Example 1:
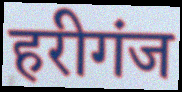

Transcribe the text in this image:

हरीगंज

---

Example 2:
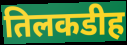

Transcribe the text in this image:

तिलकडीह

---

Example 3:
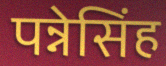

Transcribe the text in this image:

पन्नेसिंह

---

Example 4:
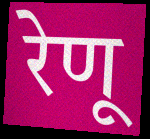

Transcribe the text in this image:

रेणू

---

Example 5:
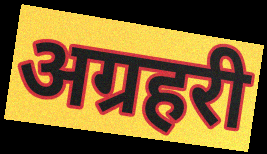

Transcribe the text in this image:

अग्रहरी